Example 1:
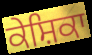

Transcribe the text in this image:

ਕੇਸ਼ਿਕਾ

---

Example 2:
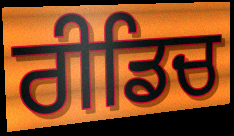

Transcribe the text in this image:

ਰੀਡਿਚ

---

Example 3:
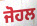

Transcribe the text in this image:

ਜੋਹਲ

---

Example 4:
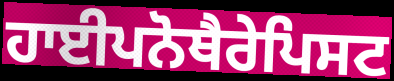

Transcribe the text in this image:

ਹਾਈਪਨੋਥੈਰੇਪਿਸਟ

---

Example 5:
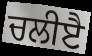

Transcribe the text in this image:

ਚਲੀੲੈ